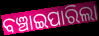
ବଞ୍ଚାଇପାରିଲା